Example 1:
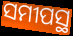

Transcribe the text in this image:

ସମୀପସ୍ଥ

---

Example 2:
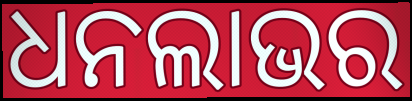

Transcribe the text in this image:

ଧନଲାଭର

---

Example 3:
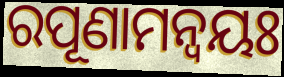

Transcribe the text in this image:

ରପୂଣାମନ୍ଵୟଃ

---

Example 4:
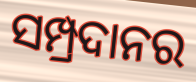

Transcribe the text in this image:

ସମ୍ପ୍ରଦାନର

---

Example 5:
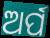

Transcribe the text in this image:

ଅର୍ପ